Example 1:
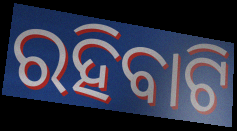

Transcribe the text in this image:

ରହିବାଟି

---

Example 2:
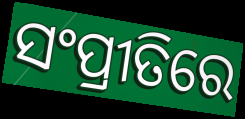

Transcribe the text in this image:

ସଂପ୍ରୀତିରେ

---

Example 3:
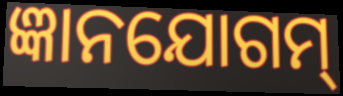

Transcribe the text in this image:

ଜ୍ଞାନଯୋଗମ୍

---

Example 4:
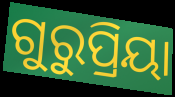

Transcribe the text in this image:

ଗୁରୁପ୍ରିୟା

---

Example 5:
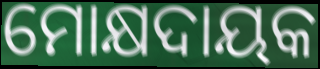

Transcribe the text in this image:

ମୋକ୍ଷଦାୟକ